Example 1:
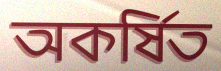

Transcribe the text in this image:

অকর্ষিত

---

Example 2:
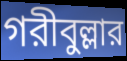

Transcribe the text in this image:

গরীবুল্লার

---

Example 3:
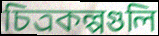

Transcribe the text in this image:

চিত্রকল্পগুলি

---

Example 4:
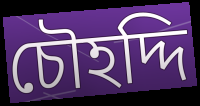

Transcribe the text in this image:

চৌহদ্দি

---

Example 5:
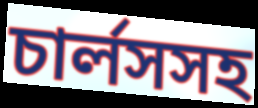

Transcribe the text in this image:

চার্লসসহ